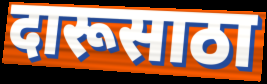
दारूसाठा